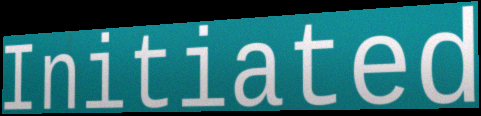
Initiated